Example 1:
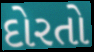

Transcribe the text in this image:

દોરતો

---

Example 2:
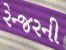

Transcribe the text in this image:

રેન્જરની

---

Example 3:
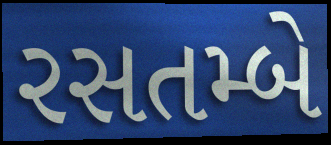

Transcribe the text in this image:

રસતમ્બે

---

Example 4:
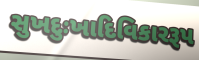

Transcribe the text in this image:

સુખદુઃખાદિવિકારરૂપ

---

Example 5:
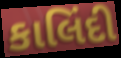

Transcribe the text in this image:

કાલિંદી